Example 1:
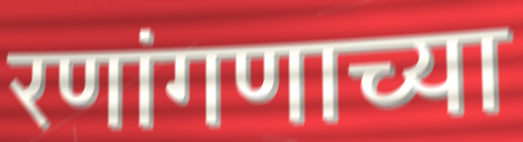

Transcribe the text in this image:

रणांगणाच्या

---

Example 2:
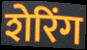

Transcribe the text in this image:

शेरिंग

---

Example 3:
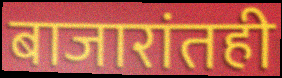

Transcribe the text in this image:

बाजारांतही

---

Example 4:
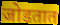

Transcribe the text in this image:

जोडतात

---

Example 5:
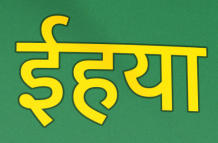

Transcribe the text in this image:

ईहया